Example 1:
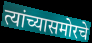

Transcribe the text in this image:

त्यांच्यासमोरचे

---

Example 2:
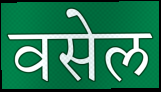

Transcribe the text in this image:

वसेल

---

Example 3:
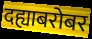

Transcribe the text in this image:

दह्याबरोबर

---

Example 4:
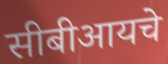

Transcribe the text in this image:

सीबीआयचे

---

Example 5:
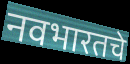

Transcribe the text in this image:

नवभारतचे